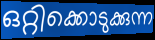
ഒറ്റിക്കൊടുക്കുന്ന